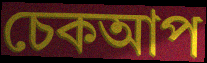
চেকআপ